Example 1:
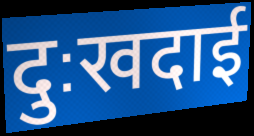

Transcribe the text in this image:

दुःखदाई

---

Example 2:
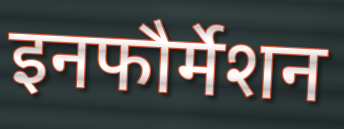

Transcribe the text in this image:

इनफौर्मेशन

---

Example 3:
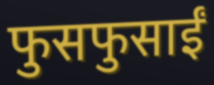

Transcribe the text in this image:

फुसफुसाईं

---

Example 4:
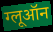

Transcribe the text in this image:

ग्लूऑन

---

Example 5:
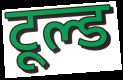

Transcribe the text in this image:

टूल्ड